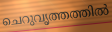
ചെറുവൃത്തത്തിൽ